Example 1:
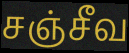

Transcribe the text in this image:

சஞ்சீவ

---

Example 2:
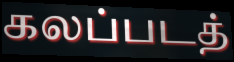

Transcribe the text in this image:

கலப்படத்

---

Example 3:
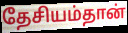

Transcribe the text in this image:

தேசியம்தான்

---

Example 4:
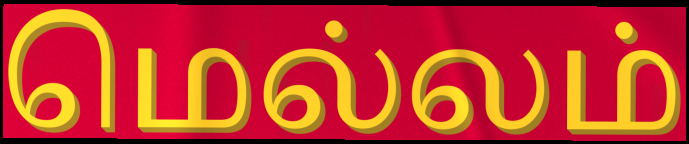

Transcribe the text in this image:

மெல்லம்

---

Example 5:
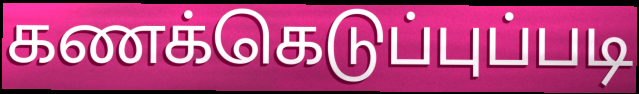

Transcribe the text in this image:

கணக்கெடுப்புப்படி